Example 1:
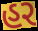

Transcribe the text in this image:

હર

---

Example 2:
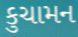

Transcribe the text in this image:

કુચામન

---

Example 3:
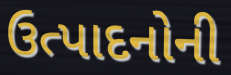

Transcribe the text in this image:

ઉત્પાદનોની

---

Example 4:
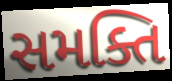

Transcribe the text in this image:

સમક્તિ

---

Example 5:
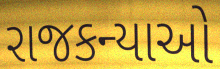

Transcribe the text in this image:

રાજકન્યાઓ